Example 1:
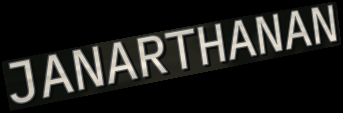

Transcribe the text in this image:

JANARTHANAN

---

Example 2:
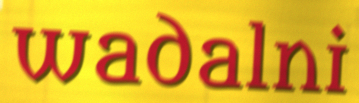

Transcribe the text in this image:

wadalni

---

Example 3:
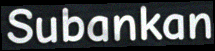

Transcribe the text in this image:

Subankan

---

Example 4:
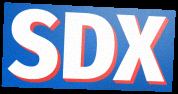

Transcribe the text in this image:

SDX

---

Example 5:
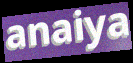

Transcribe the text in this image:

anaiya